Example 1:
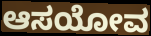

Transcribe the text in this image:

ಆಸಯೋವ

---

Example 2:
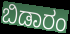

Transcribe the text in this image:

ಬಿಡಾರಂ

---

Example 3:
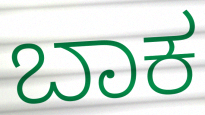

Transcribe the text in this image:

ಬಾಕ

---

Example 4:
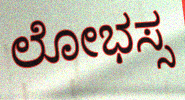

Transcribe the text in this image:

ಲೋಭಸ್ಸ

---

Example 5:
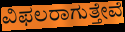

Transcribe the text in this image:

ವಿಫಲರಾಗುತ್ತೇವೆ